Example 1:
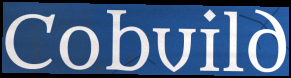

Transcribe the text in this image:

Cobuild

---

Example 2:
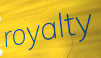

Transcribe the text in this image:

royalty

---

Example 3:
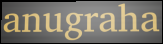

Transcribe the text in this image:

anugraha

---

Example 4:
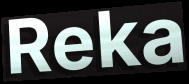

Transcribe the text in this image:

Reka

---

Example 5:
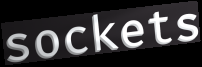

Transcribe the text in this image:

sockets